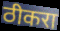
ठीकरा